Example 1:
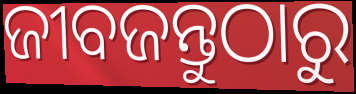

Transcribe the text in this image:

ଜୀବଜନ୍ତୁଠାରୁ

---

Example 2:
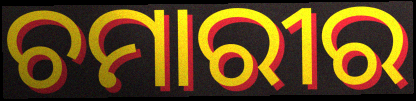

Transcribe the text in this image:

ଚମାରୀର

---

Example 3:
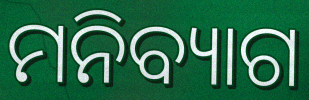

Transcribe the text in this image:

ମନିବ୍ୟାଗ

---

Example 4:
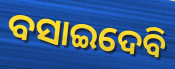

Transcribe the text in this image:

ବସାଇଦେବି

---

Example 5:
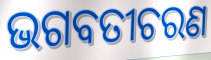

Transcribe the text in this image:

ଭଗବତୀଚରଣ